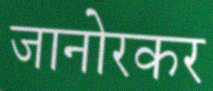
जानोरकर